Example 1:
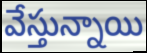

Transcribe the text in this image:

వేస్తున్నాయి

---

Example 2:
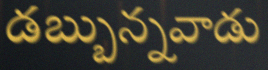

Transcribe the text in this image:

డబ్బున్నవాడు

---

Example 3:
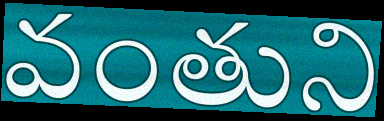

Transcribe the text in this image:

వంతుని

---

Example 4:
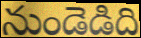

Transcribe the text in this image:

నుండెడిది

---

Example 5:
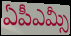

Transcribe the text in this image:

ఏపీఎమ్సీ